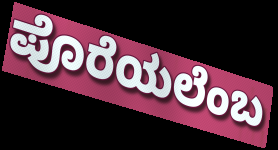
ಪೊರೆಯಲೆಂಬ